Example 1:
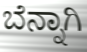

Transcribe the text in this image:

ಬೆನ್ನಾಗಿ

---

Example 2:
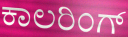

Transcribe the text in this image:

ಕಾಲರಿಂಗ್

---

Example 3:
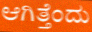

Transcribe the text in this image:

ಆಗಿತ್ತೆಂದು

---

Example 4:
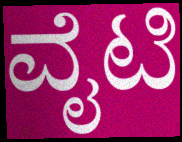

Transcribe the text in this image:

ವೈಟಿ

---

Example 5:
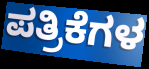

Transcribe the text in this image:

ಪತ್ರಿಕೆಗಳ